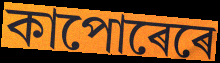
কাপোৰেৰে